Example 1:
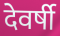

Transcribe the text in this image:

देवर्षी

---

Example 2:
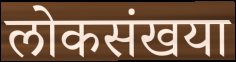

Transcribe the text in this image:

लोकसंखया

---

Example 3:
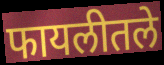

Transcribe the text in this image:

फायलीतले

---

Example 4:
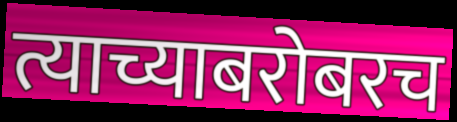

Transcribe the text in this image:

त्याच्याबरोबरच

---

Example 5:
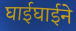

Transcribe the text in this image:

घाईघाईने